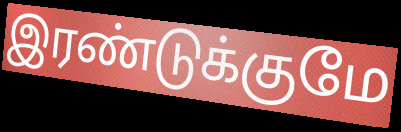
இரண்டுக்குமே